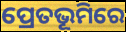
ପ୍ରେତଭୂମିରେ